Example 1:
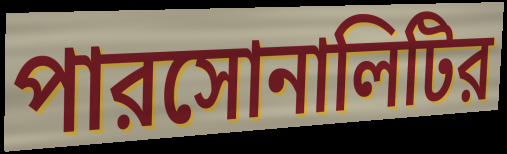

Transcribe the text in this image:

পারসোনালিটির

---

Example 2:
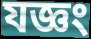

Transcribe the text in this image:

যজ্ঞং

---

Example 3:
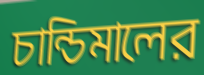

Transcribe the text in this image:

চান্ডিমালের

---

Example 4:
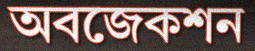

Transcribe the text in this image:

অবজেকশন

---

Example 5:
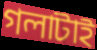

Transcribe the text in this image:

গলাটাই